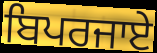
ਬਿਪਰਜਾਏ